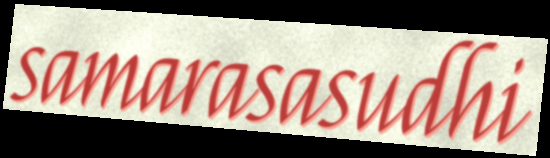
samarasasudhi